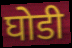
घोडी